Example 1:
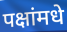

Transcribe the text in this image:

पक्षांमधे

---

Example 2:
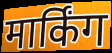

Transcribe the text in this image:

मार्किंग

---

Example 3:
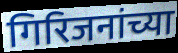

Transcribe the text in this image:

गिरिजनांच्या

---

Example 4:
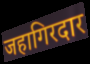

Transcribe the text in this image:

जहागिरदार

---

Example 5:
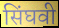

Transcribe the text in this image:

सिंघवी